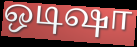
ஒடிஷா